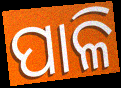
ପାଳି